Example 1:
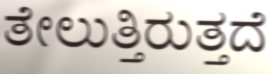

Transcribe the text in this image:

ತೇಲುತ್ತಿರುತ್ತದೆ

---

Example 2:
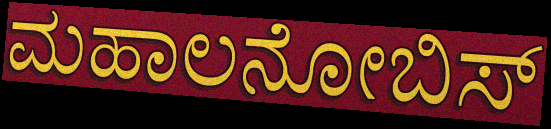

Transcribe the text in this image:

ಮಹಾಲನೋಬಿಸ್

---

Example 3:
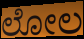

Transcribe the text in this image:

ಲೋಲ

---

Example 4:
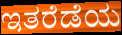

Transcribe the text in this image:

ಇತರೆಡೆಯ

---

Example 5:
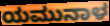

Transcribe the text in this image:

ಯಮುನಾಳ